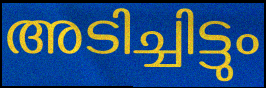
അടിച്ചിട്ടും